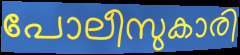
പോലീസുകാരി